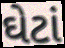
ઘેટાં